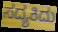
ಸದ್ಯಕಿದು